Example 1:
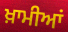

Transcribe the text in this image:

ਖ਼ਾਮੀਆਂ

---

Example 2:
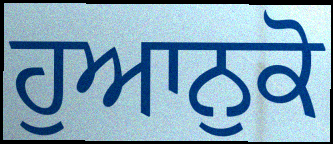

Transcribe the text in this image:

ਹੁਆਨੁਕੋ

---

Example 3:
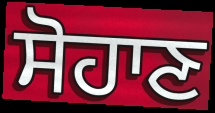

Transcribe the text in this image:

ਸੋਹਾਣ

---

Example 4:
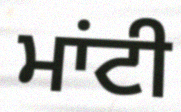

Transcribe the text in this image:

ਮਾਂਟੀ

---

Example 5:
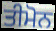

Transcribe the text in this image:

ਤੀਮੋਨ